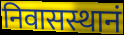
निवासस्थानं